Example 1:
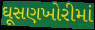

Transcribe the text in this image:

ઘૂસણખોરીમાં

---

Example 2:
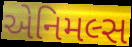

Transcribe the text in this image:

એનિમલ્સ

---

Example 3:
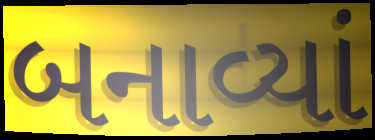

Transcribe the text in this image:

બનાવ્યાં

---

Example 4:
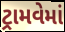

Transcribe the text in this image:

ટ્રામવેમાં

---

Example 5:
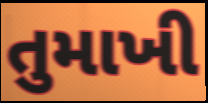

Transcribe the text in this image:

તુમાખી